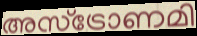
അസ്ട്രോണമി